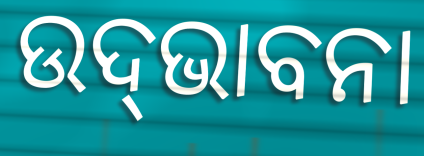
ଉଦ୍‍ଭାବନା